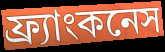
ফ্র্যাংকনেস